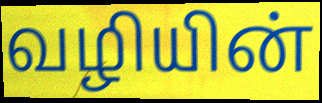
வழியின்